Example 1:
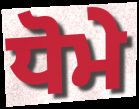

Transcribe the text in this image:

ਧੋਮੇ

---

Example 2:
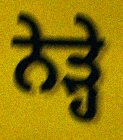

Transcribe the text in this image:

ਨੇੜ੍ਹੇ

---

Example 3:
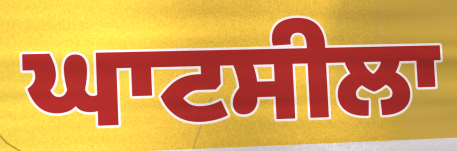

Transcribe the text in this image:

ਘਾਟਸੀਲਾ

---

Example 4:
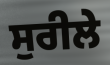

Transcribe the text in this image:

ਸੁਰੀਲੇ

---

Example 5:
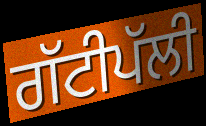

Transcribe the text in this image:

ਗੱਟੀਪੱਲੀ